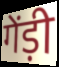
गेंड़ी